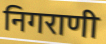
निगराणी